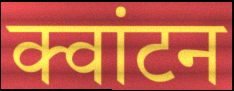
क्वांटन